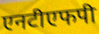
एनटीएफपी